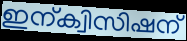
ഇന്ക്വിസിഷന്